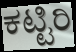
ಕಟ್ಟಿರಿ